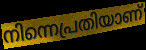
നിന്നെപ്രതിയാണ്